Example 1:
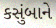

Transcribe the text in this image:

કસુંબાને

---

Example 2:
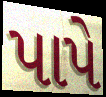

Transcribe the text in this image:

પાપે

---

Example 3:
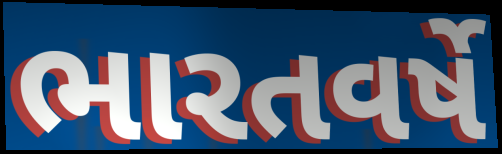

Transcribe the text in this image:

ભારતવર્ષે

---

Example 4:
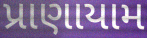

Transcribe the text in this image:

પ્રાણાયામ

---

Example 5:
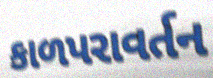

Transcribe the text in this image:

કાળપરાવર્તન